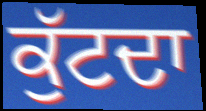
ਕੁੱਟਦਾ